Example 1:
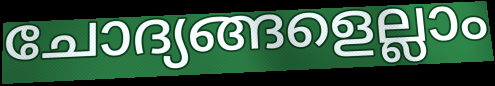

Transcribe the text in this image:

ചോദ്യങ്ങളെല്ലാം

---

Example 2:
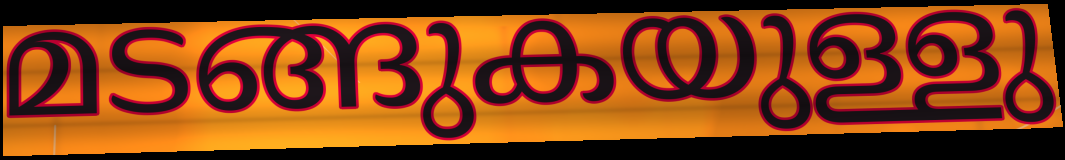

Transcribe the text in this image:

മടങ്ങുകയുള്ളു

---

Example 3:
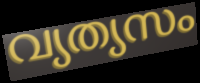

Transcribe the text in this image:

വ്യത്യസം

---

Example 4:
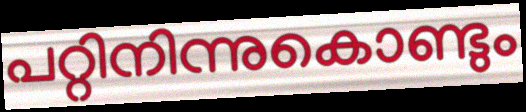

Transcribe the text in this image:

പറ്റിനിന്നുകൊണ്ടും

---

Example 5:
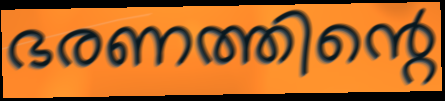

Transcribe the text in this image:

ഭരണത്തിന്റെ